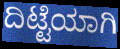
ದಿಟ್ಟೆಯಾಗಿ